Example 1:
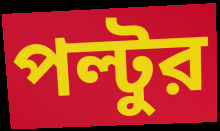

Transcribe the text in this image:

পল্টুর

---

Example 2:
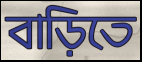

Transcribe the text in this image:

বাড়িতে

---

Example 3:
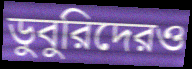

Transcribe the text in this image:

ডুবুরিদেরও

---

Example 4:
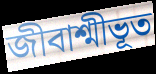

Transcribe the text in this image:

জীবাশ্মীভূত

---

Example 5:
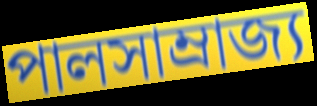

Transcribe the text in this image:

পালসাম্রাজ্য